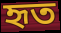
হৃত